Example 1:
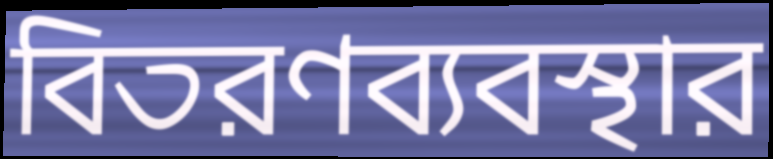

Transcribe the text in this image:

বিতরণব্যবস্থার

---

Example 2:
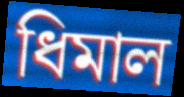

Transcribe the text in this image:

ধিমাল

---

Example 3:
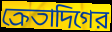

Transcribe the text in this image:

ক্রেতাদিগের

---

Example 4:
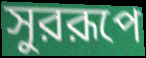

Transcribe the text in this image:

সুররূপে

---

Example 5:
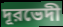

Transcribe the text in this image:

দূরভেদী